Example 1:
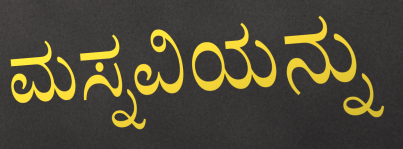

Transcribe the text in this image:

ಮಸ್ನವಿಯನ್ನು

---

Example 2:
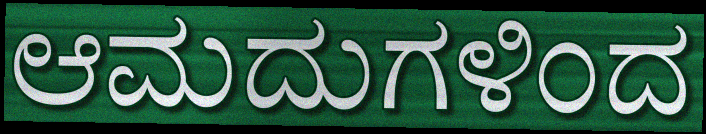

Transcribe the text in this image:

ಆಮದುಗಳಿಂದ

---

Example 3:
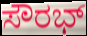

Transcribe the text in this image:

ಸೌರಭ್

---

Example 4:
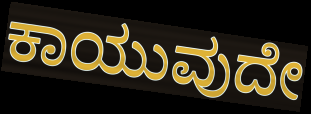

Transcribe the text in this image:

ಕಾಯುವುದೇ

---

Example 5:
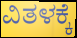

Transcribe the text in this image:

ವಿತಳಕ್ಕೆ